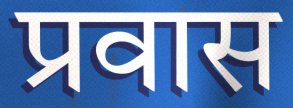
प्रवास